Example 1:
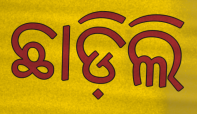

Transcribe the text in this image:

ଛାଡ଼ିଲି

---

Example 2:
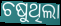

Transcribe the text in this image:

ଚଷୁଥିଲା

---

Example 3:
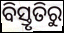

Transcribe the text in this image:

ବିସ୍ତୃତିରୁ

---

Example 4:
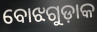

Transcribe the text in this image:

ବୋଝଗୁଡ଼ାକ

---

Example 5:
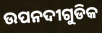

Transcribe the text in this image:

ଉପନଦୀଗୁଡିକ